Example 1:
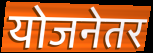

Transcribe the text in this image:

योजनेतर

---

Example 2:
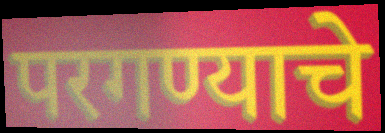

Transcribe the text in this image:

परगण्याचे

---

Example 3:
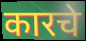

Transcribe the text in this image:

कारचे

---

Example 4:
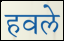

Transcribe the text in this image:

हवले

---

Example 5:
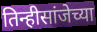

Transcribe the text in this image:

तिन्हीसांजेच्या